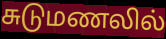
சுடுமணலில்